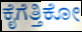
ಕೈಗೆತ್ತಿಕೋ